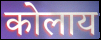
कोलाय